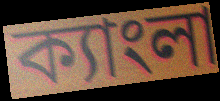
ক্যাংলা